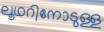
ലൂഥറിനോടുള്ള